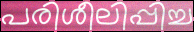
പരിശീലിപ്പിച്ച